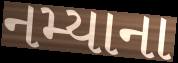
નમ્યાના